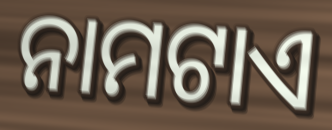
ନାମଟାଏ